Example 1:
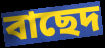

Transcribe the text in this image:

বাছেদ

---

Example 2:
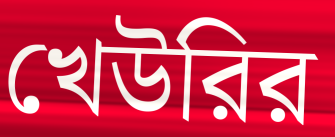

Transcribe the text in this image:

খেউরির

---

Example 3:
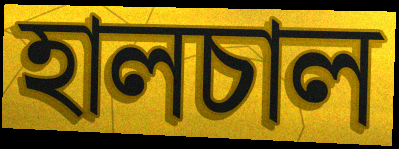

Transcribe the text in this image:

হালচাল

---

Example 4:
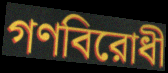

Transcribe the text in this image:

গণবিরোধী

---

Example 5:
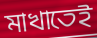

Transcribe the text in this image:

মাখাতেই